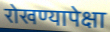
रोखण्यापेक्षा